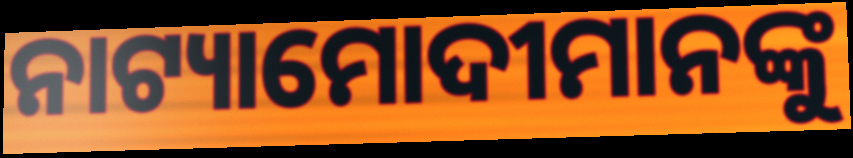
ନାଟ୍ୟାମୋଦୀମାନଙ୍କୁ